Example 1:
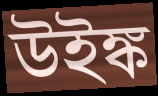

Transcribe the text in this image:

উইঙ্ক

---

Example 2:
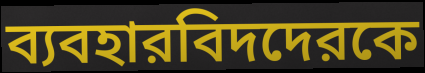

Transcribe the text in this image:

ব্যবহারবিদদেরকে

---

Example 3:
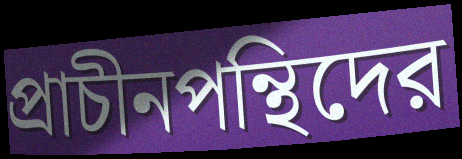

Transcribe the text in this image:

প্রাচীনপন্থিদের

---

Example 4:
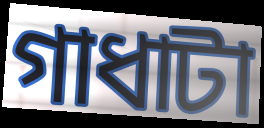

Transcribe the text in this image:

গাধাটা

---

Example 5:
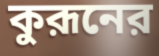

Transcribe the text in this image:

কুরূনের